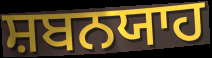
ਸ਼ਬਨਯਾਹ